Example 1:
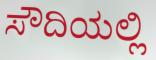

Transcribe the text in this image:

ಸೌದಿಯಲ್ಲಿ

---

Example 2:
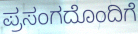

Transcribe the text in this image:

ಪ್ರಸಂಗದೊಂದಿಗೆ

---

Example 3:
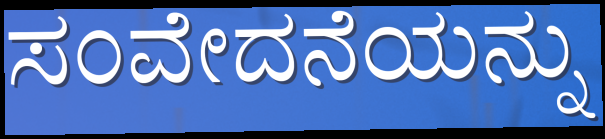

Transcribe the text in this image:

ಸಂವೇದನೆಯನ್ನು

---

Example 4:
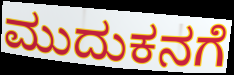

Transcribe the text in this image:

ಮುದುಕನಗೆ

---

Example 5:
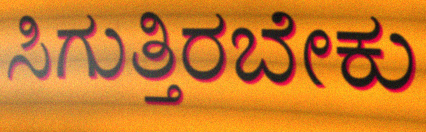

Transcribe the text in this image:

ಸಿಗುತ್ತಿರಬೇಕು